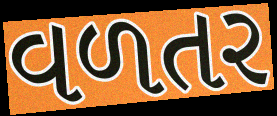
વળતર